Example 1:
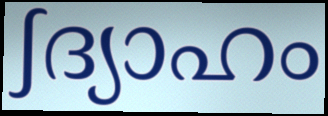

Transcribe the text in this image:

ഽദ്യാഹം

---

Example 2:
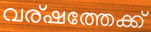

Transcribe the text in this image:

വര്ഷത്തേക്ക്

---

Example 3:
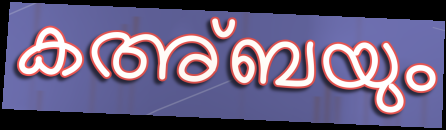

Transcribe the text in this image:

കഅ്ബയും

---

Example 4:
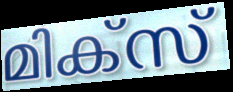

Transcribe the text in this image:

മിക്‌സ്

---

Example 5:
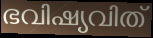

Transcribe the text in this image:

ഭവിഷ്യവിത്